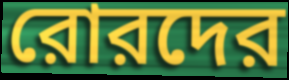
রোরদের